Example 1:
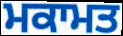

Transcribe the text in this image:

ਮਕਾਮਤ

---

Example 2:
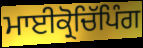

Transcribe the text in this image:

ਮਾਈਕ੍ਰੋਚਿੱਪਿੰਗ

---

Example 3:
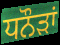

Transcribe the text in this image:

ਧਨੌੜਾਂ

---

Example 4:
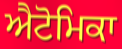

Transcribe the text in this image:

ਐਟੋਮਿਕਾ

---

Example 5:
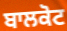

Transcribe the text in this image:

ਬਾਲਕੋਟ